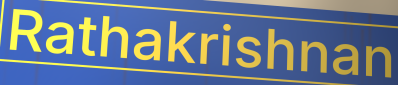
Rathakrishnan